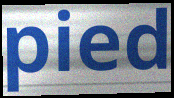
pied